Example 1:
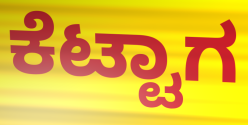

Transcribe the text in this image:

ಕೆಟ್ಟಾಗ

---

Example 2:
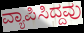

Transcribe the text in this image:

ವ್ಯಾಪಿಸಿದ್ದವು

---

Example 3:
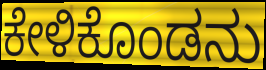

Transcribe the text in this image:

ಕೇಳಿಕೊಂಡನು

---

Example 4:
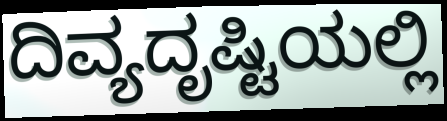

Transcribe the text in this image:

ದಿವ್ಯದೃಷ್ಟಿಯಲ್ಲಿ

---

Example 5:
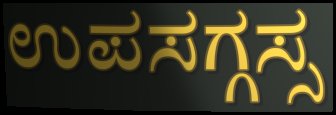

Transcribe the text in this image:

ಉಪಸಗ್ಗಸ್ಸ